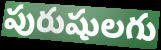
పురుషులగు